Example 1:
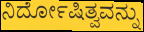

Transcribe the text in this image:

ನಿರ್ದೋಷಿತ್ವವನ್ನು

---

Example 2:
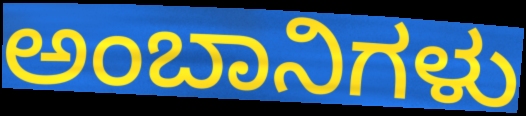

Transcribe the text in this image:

ಅಂಬಾನಿಗಳು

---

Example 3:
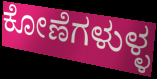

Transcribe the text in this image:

ಕೋಣೆಗಳುಳ್ಳ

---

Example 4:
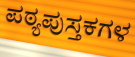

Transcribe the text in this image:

ಪಠ್ಯಪುಸ್ತಕಗಳ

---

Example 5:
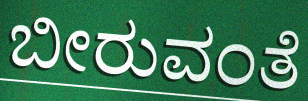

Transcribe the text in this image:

ಬೀರುವಂತೆ